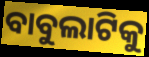
ବାବୁଲାଟିକୁ